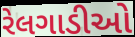
રેલગાડીઓ